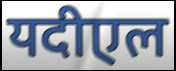
यदीएल